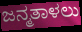
ಜನ್ಮತಾಳಲು